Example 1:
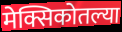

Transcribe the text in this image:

मेक्सिकोतल्या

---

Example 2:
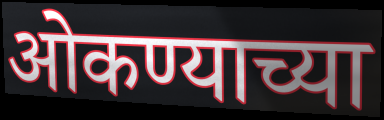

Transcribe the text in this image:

ओकण्याच्या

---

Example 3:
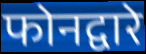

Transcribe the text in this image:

फोनद्वारे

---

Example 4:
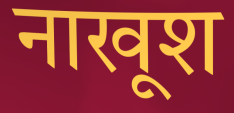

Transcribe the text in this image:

नाखूश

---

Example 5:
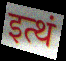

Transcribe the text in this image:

इत्थं